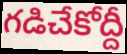
గడిచేకోద్దీ